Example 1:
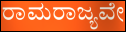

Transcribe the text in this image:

ರಾಮರಾಜ್ಯವೇ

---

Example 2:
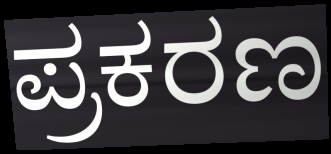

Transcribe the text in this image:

ಪ್ರಕರಣ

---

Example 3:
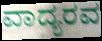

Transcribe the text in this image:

ವಾದ್ಯರವ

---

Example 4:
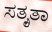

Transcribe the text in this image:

ಸತ್ಕೃತಾ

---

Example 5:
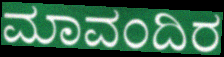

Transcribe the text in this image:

ಮಾವಂದಿರ